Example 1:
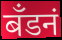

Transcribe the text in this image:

बँडनं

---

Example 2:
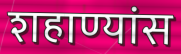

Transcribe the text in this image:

शहाण्यांस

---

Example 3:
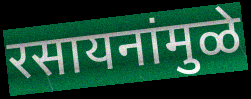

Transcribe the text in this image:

रसायनांमुळे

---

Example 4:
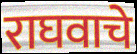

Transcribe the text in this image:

राघवाचे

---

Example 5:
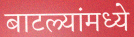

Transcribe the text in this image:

बाटल्यांमध्ये